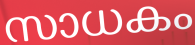
സാധകം